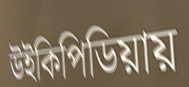
উইকিপিডিয়ায়